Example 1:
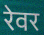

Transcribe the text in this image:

रेवर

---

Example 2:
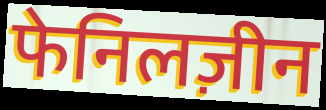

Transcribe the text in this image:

फेनिलज़ीन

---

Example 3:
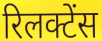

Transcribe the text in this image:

रिलक्टेंस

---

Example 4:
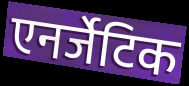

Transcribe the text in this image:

एनर्जेटिक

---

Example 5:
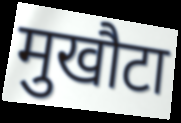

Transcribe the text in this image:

मुखौटा